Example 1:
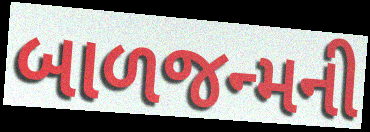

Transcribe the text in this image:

બાળજન્મની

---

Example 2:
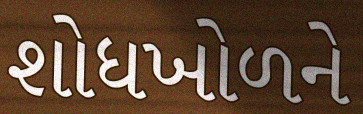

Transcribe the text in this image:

શોધખોળને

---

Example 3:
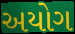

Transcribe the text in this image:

અયોગ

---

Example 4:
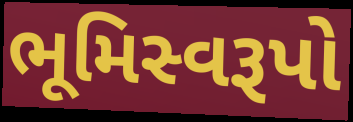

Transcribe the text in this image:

ભૂમિસ્વરૂપો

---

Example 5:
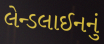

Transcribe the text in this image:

લેન્ડલાઈનનું